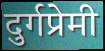
दुर्गप्रेमी